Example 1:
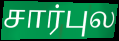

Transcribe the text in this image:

சார்புல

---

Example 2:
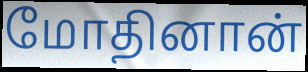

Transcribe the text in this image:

மோதினான்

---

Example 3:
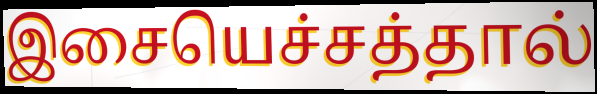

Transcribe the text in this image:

இசையெச்சத்தால்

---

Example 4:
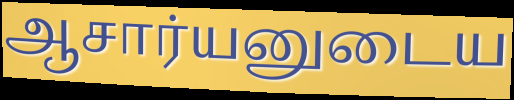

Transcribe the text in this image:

ஆசார்யனுடைய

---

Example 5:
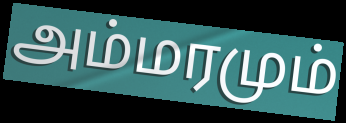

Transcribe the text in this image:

அம்மரமும்